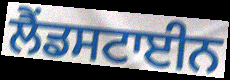
ਲੈਂਡਸਟਾਈਨ